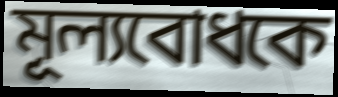
মূল্যবোধকে